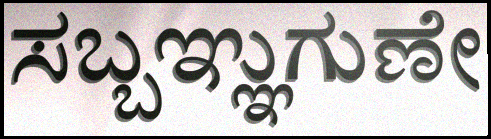
ಸಬ್ಬಞ್ಞುಗುಣೇ